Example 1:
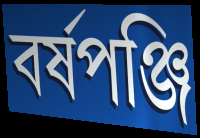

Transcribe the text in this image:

বর্ষপঞ্জি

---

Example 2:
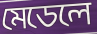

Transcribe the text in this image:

মেডেলে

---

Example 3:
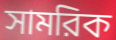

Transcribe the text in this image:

সামরিক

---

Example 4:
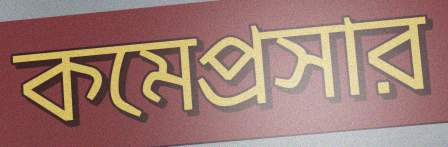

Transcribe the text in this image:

কমেপ্রসার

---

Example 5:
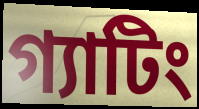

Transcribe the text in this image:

গ্যাটিং